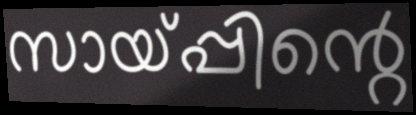
സായ്പ്പിന്റെ